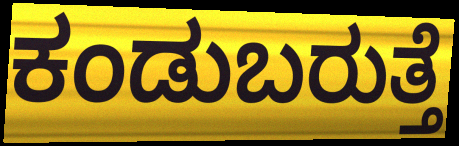
ಕಂಡುಬರುತ್ತೆ